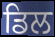
ਡਿਲ